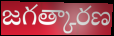
జగత్కారణ